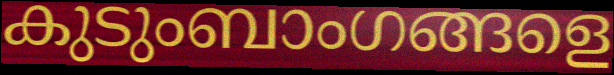
കുടുംബാംഗങ്ങളെ